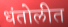
धंतोलीत